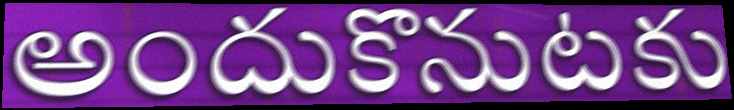
అందుకొనుటకు